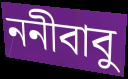
ননীবাবু